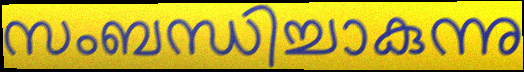
സംബന്ധിച്ചാകുന്നു